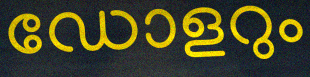
ഡോളറും